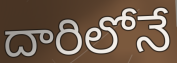
దారిలోనే